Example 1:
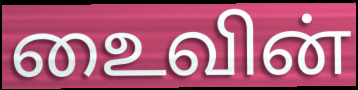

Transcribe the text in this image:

உைவின்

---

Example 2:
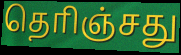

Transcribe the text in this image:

தெரிஞ்சது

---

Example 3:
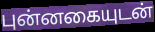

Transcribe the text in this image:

புன்னகையுடன்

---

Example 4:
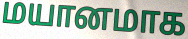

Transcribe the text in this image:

மயானமாக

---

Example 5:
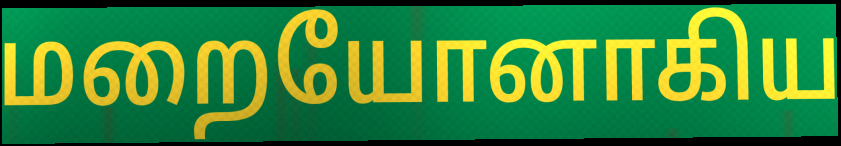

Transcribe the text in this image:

மறையோனாகிய